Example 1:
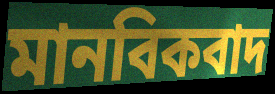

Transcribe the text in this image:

মানবিকবাদ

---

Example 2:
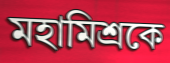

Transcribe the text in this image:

মহামিশ্রকে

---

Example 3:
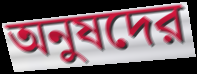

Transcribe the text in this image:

অনুষদের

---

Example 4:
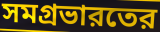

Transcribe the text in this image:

সমগ্রভারতের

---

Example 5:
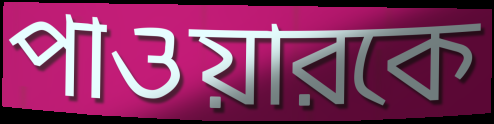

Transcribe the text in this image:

পাওয়ারকে